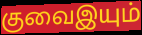
குவைஇயும்